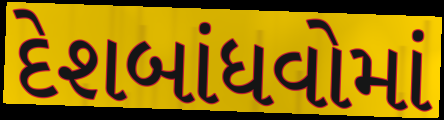
દેશબાંધવોમાં